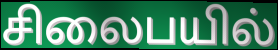
சிலைபயில்